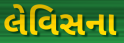
લેવિસના